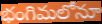
భంగిమలోనూ